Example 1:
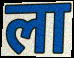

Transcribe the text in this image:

ला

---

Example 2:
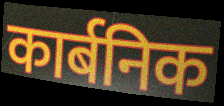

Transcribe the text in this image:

कार्बनिक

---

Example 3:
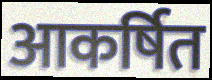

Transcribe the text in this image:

आकर्षित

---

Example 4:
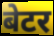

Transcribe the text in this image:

बेटर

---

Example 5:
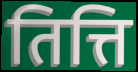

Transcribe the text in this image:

तित्ति